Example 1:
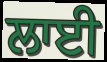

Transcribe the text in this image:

ਲਾਈ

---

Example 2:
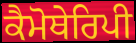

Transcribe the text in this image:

ਕੈਮੋਥੇਰਿਪੀ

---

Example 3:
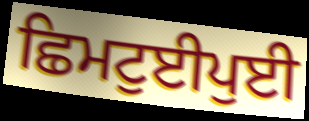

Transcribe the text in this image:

ਛਿਮਟੁਈਪੁਈ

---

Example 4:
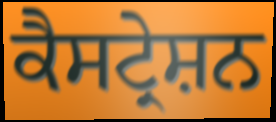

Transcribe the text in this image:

ਕੈਸਟ੍ਰੇਸ਼ਨ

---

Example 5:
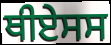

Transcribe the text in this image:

ਥੀਏਸਸ